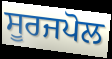
ਸੂਰਜਪੋਲ